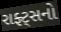
રાફ્ટ્સનો